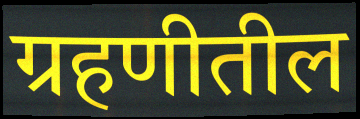
ग्रहणीतील